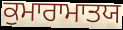
ਕੁਮਾਰਾਮਾਤਯ